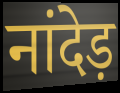
नांदेड़